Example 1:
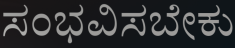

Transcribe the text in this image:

ಸಂಭವಿಸಬೇಕು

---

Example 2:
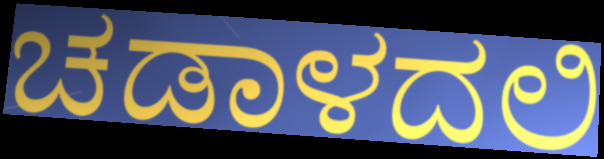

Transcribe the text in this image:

ಚಡಾಳದಲಿ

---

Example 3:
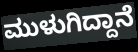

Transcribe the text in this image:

ಮುಳುಗಿದ್ದಾನೆ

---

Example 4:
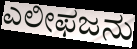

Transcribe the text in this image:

ಎಲೀಫಜನು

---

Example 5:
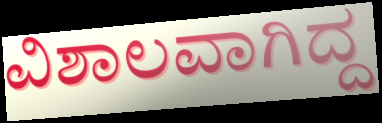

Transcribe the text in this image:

ವಿಶಾಲವಾಗಿದ್ದ